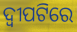
ଦ୍ୱୀପଟିରେ